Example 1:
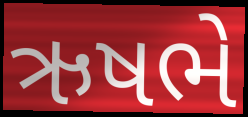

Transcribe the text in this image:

ઋષભે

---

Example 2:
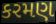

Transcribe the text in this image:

કરમણ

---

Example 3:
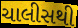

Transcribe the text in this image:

ચાલીસથી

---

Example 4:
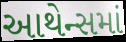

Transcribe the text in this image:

આથેન્સમાં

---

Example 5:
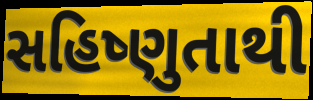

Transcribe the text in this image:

સહિષ્ણુતાથી